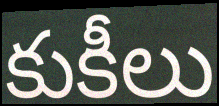
కుకీలు